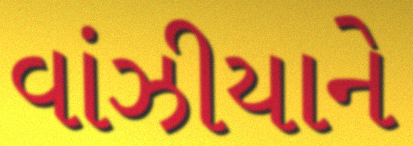
વાંઝીયાને